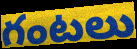
గంటలు